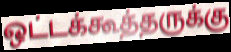
ஒட்டக்கூத்தருக்கு